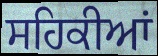
ਸਹਿਕੀਆਂ